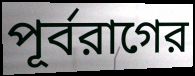
পূর্বরাগের